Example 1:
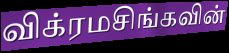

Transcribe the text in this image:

விக்ரமசிங்கவின்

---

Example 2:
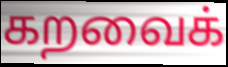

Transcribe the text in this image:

கறவைக்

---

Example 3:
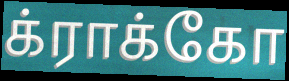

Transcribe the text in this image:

க்ராக்கோ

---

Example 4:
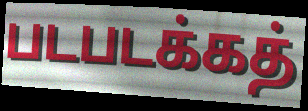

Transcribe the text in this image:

படபடக்கத்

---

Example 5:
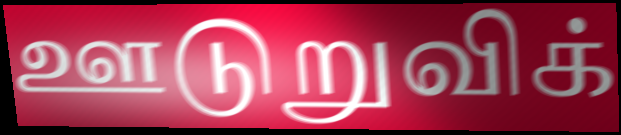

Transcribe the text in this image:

ஊடுறுவிக்